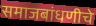
समाजबांधणीचे